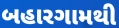
બહારગામથી